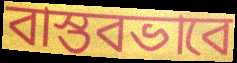
বাস্তবভাবে